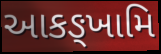
આકઙ્ખામિ